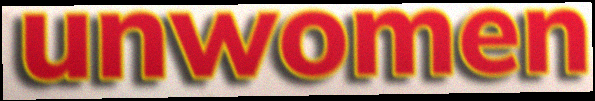
unwomen